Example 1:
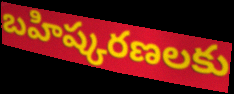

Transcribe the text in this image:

బహిష్కరణలకు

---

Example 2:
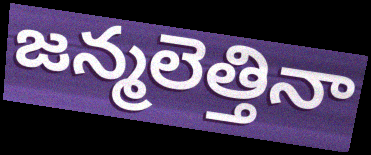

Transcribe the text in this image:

జన్మలెత్తినా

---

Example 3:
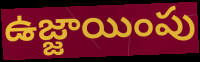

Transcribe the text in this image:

ఉజ్జాయింపు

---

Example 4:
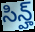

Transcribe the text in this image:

సిన్హ్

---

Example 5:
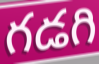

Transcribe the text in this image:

గడగి